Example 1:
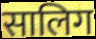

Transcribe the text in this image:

सालिग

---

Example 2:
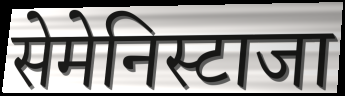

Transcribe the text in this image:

सेमेनिस्टाजा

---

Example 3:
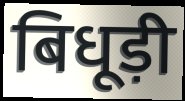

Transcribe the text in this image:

बिधूड़ी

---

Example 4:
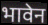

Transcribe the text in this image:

भावेन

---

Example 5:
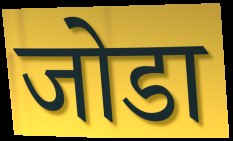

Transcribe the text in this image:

जोडा